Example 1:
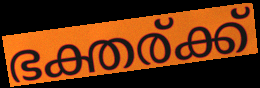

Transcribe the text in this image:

ഭക്തര്ക്ക്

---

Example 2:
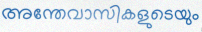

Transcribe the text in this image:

അന്തേവാസികളുടെയും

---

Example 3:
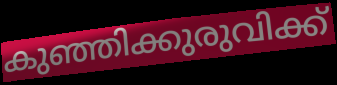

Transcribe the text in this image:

കുഞ്ഞിക്കുരുവിക്ക്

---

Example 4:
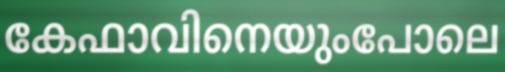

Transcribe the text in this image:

കേഫാവിനെയുംപോലെ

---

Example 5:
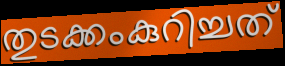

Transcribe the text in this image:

തുടക്കംകുറിച്ചത്